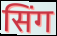
सिंग